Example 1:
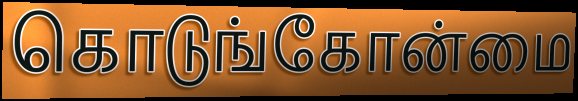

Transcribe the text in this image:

கொடுங்கோன்மை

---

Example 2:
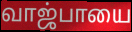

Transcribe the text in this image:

வாஜ்பாயை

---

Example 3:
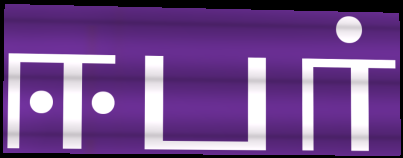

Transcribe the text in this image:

ஈபர்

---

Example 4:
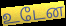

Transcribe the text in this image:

உடேன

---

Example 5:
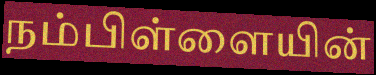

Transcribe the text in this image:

நம்பிள்ளையின்